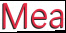
Mea